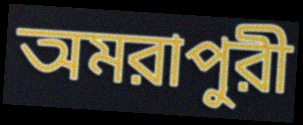
অমরাপুরী